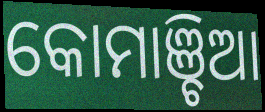
କୋମାଞ୍ଚିଆ